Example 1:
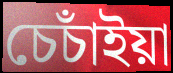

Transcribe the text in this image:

চেচাঁইয়া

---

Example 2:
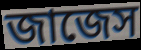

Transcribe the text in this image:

জাজেস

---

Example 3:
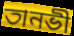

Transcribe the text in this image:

তানভী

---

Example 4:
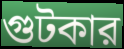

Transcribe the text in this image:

গুটকার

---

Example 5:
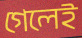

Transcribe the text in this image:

গেলেই